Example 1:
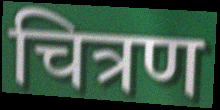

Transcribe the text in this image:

चित्रण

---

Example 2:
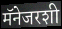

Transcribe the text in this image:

मॅनेजरशी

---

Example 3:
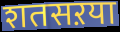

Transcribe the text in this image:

शतसऱया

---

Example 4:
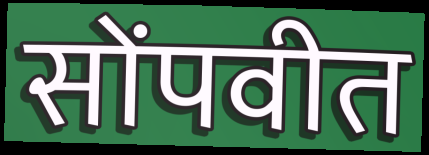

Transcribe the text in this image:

सोंपवीत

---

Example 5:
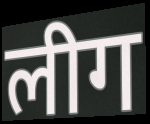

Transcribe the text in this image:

लीग